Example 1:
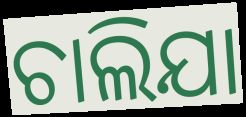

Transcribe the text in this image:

ଚାଲିଯା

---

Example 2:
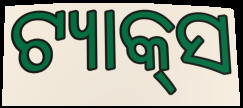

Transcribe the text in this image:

ଟ୍ୟାକ୍‌ସ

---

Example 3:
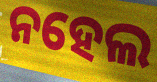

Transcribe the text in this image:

ନହେଲ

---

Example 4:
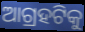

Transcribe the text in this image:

ଆଗ୍ରହଟିକୁ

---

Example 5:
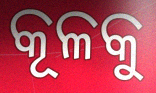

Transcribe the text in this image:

କୂଳକୁ